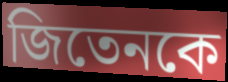
জিতেনকে